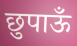
छुपाऊँ